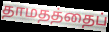
தாமதத்தைப்